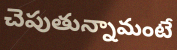
చెపుతున్నామంటే